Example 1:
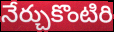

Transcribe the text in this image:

నేర్చుకొంటిరి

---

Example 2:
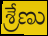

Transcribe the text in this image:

శ్రేణు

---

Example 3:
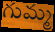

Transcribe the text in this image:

గుమ్మ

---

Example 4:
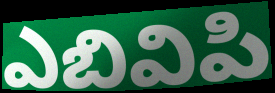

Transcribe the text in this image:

ఎబివిపి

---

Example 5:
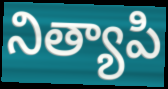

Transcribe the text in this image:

నిత్యాపి